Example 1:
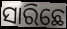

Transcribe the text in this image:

ସାରିଛେ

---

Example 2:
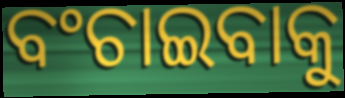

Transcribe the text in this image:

ବଂଚାଇବାକୁ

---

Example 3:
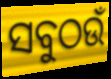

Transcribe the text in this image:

ସବୁଠଉଁ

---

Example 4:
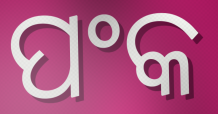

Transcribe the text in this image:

ପଂକ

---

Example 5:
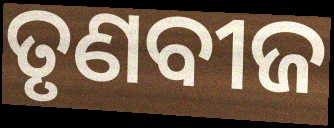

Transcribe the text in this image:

ତୃଣବୀଜ